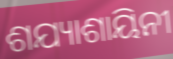
ଶଯ୍ୟାଶାୟିନୀ